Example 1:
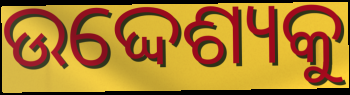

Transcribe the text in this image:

ଉଦ୍ଦେଶ୍ୟକୁ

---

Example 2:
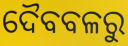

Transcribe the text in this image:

ଦୈବବଳରୁ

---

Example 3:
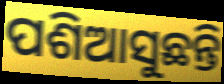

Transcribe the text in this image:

ପଶିଆସୁଛନ୍ତି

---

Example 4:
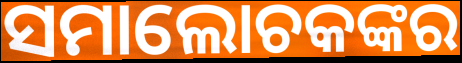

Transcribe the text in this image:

ସମାଲୋଚକଙ୍କର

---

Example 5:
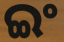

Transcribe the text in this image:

ଇଂ